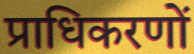
प्राधिकरणों